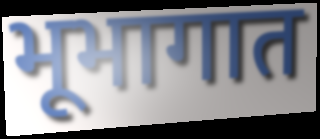
भूभागात